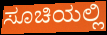
ಸೂಚಿಯಲ್ಲಿ